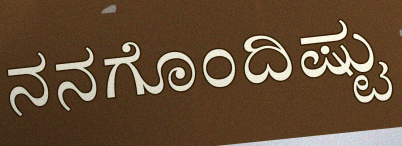
ನನಗೊಂದಿಷ್ಟು